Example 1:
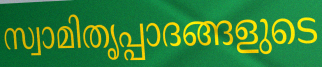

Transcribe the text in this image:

സ്വാമിതൃപ്പാദങ്ങളുടെ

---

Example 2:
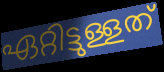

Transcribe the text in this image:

ഏറ്റിട്ടുള്ളത്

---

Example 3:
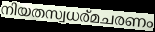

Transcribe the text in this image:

നിയതസ്വധര്മചരണം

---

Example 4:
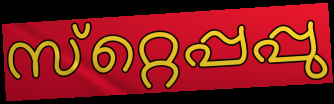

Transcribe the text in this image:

സ്‌റ്റെപ്പപ്പു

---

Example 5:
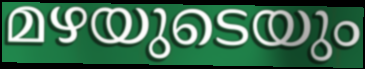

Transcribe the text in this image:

മഴയുടെയും